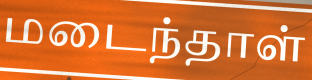
மடைந்தாள்